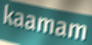
kaamam